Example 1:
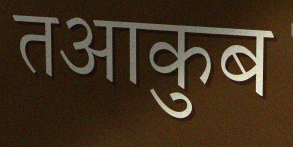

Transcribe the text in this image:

तआकुब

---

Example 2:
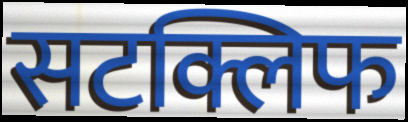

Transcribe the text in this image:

सटक्लिफ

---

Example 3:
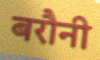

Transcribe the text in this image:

बरौनी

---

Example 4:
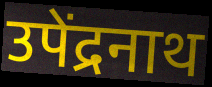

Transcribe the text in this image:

उपेंद्रनाथ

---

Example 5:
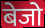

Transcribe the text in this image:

बेजो